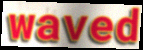
waved